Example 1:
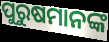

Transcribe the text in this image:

ପୁରୁଷମାନଙ୍କ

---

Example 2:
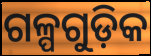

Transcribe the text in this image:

ଗଳ୍ପଗୁଡ଼ିକ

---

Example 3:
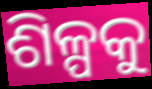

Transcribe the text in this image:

ଶିଳ୍ପକୁ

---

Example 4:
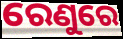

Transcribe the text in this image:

ରେଣୁରେ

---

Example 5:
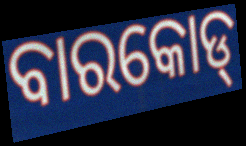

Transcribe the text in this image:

ବାରକୋଡ୍